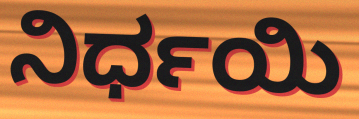
ನಿರ್ಧಯಿ